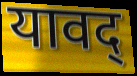
यावद्